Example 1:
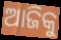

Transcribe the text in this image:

ଆଜିକୁ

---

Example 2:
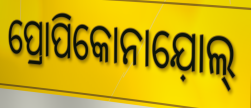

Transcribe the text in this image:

ପ୍ରୋପିକୋନାଯ଼ୋଲ୍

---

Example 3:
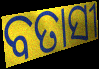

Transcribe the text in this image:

ବତାସୀ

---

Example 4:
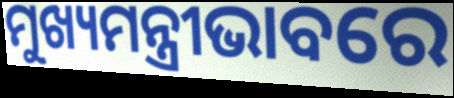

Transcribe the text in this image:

ମୁଖ୍ୟମନ୍ତ୍ରୀଭାବରେ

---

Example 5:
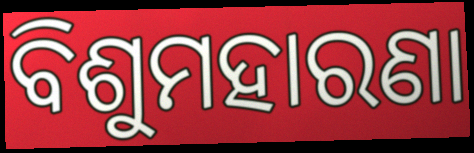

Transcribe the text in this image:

ବିଶୁମହାରଣା